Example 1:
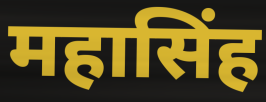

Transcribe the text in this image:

महासिंह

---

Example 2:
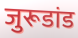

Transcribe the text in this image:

जुरूडांड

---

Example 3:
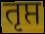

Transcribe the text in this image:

तृप्त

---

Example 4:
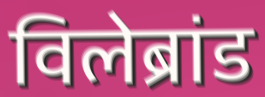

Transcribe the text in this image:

विलेब्रांड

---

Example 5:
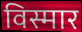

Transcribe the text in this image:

विस्मार